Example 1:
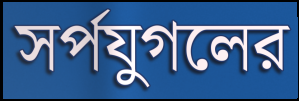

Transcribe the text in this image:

সর্পযুগলের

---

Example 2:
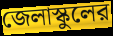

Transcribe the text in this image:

জেলাস্কুলের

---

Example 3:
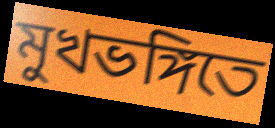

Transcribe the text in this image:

মুখভঙ্গিতে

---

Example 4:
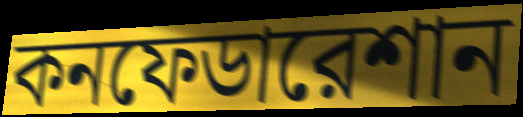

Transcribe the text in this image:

কনফেডারেশান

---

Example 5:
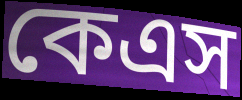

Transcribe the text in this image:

কেএস